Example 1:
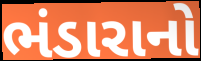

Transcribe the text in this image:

ભંડારાનો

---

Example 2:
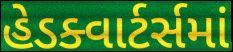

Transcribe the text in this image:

હેડક્વાર્ટર્સમાં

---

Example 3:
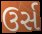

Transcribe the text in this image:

ઉર્સ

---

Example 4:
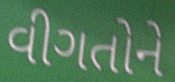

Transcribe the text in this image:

વીગતોને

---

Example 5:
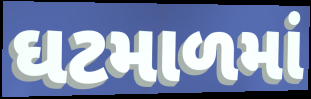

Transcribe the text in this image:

ઘટમાળમાં